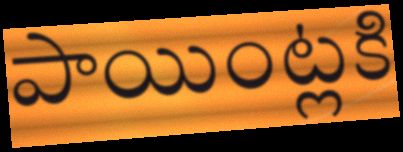
పాయింట్లకి